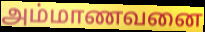
அம்மாணவனை